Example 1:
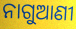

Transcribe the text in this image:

ନାଗୁଆଣୀ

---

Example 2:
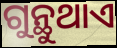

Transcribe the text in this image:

ଗୁନ୍ଥୁଥାଏ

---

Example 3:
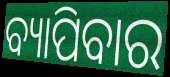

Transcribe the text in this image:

ବ୍ୟାପିବାର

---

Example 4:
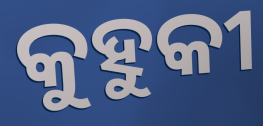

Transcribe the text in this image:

କୁହୁକୀ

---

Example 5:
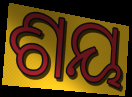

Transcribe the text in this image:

ଶୟ